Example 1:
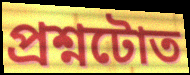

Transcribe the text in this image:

প্ৰশ্নটোত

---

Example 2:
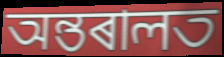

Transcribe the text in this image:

অন্তৰালত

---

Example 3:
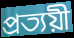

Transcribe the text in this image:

প্ৰত্যয়ী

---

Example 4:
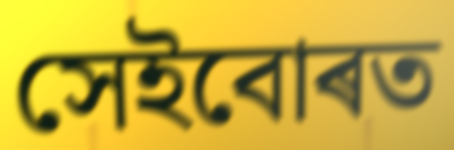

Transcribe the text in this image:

সেইবোৰত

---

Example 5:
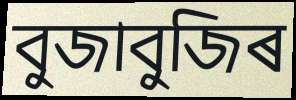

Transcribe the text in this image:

বুজাবুজিৰ